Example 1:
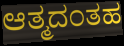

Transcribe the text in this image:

ಆತ್ಮದಂತಹ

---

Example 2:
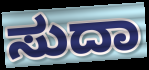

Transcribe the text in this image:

ಸುದಾ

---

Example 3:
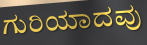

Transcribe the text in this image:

ಗುರಿಯಾದವು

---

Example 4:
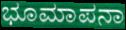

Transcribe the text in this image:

ಭೂಮಾಪನಾ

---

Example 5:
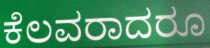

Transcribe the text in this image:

ಕೆಲವರಾದರೂ